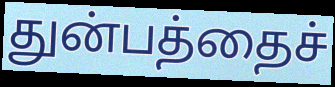
துன்பத்தைச்